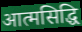
आत्मसिद्धि